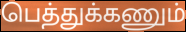
பெத்துக்கணும்